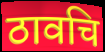
ठावचि